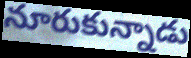
నూరుకున్నాడు